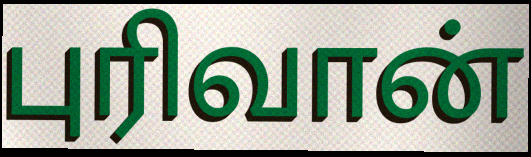
புரிவான்